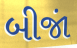
બીજાં